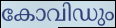
കോവിഡും